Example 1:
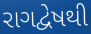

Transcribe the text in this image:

રાગદ્વેષથી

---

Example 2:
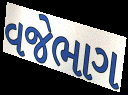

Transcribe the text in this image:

વજેભાગ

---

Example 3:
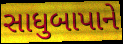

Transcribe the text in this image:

સાધુબાપાને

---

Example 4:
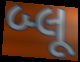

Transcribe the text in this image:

બ્લૂ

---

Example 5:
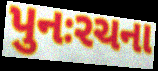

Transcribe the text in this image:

પુનઃરચના